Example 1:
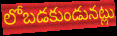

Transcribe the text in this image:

లోబడకుండునట్లు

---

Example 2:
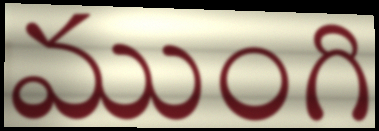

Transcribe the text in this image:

ముంగి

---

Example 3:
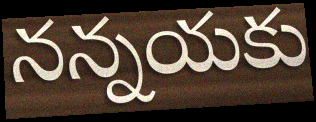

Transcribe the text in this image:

నన్నయకు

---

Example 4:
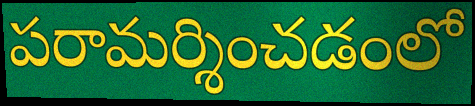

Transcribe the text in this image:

పరామర్శించడంలో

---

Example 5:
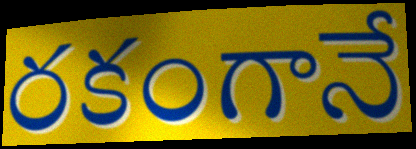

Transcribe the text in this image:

రకంగానే